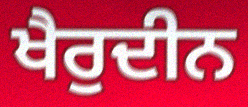
ਖੈਰੁਦੀਨ